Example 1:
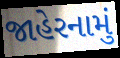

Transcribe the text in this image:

જાહેરનામું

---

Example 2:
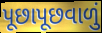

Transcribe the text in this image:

પૂછાપૂછવાળું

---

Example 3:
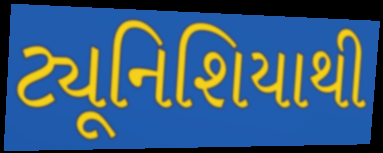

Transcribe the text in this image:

ટ્યૂનિશિયાથી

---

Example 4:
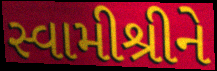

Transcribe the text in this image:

સ્વામીશ્રીને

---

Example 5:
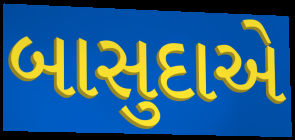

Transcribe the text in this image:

બાસુદાએ